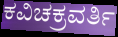
ಕವಿಚಕ್ರವರ್ತಿ